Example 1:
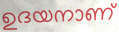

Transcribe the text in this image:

ഉദയനാണ്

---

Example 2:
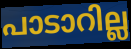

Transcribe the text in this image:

പാടാറില്ല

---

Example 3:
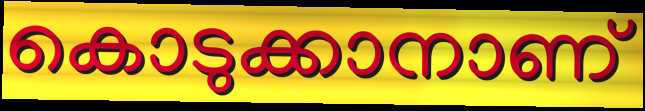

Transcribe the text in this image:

കൊടുക്കാനാണ്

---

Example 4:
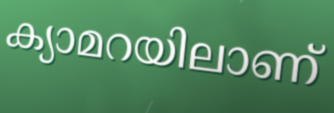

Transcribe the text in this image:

ക്യാമറയിലാണ്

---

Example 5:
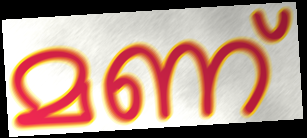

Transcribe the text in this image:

മണ്